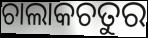
ଚାଲାକଚତୁର